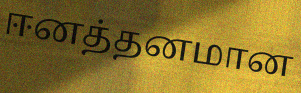
ஈனத்தனமான